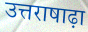
उत्तराषाढ़ा